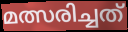
മത്സരിച്ചത്